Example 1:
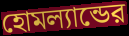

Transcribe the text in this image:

হোমল্যান্ডের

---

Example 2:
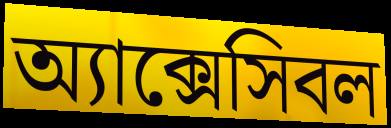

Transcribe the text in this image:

অ্যাক্সেসিবল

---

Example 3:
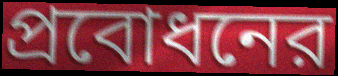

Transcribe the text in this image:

প্রবোধনের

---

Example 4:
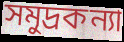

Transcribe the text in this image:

সমুদ্রকন্যা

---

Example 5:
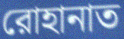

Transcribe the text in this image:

রোহানাত